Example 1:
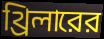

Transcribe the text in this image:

থ্রিলারের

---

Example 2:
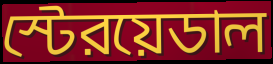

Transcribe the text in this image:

স্টেরয়েডাল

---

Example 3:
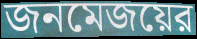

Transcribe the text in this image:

জনমেজয়ের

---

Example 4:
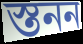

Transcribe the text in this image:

স্তনন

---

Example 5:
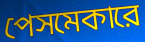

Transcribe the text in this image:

পেসমেকারে